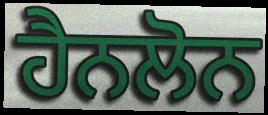
ਹੈਨਲੋਨ